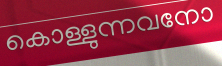
കൊള്ളുന്നവനോ